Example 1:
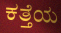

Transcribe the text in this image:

ಕತ್ತೆಯ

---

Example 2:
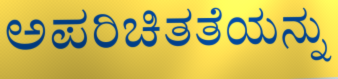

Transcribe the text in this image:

ಅಪರಿಚಿತತೆಯನ್ನು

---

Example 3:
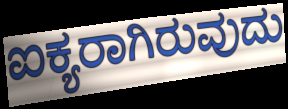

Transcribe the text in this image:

ಐಕ್ಯರಾಗಿರುವುದು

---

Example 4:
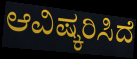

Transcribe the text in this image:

ಆವಿಷ್ಕರಿಸಿದೆ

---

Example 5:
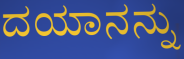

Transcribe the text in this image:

ದಯಾನನ್ನು